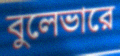
বুলেভারে